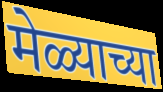
मेळ्याच्या